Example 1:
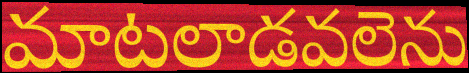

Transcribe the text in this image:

మాటలాడవలెను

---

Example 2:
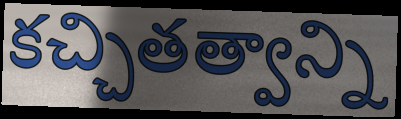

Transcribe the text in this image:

కచ్చితత్వాన్ని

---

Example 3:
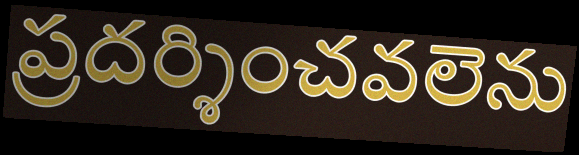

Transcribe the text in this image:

ప్రదర్శించవలెను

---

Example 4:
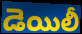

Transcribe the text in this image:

డెయిలీ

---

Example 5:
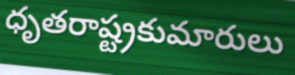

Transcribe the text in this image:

ధృతరాష్ట్రకుమారులు